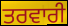
ਤਰਵਾਰੀ